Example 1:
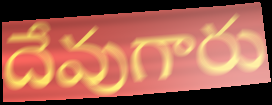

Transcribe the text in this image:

దేవుగారు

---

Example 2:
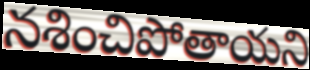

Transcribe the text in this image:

నశించిపోతాయని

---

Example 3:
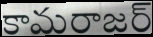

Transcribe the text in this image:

కామరాజర్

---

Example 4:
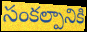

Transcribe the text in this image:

సంకల్పానికి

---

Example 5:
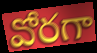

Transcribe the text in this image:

వోరగా